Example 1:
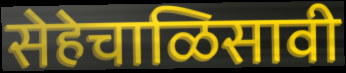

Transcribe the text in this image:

सेहेचाळिसावी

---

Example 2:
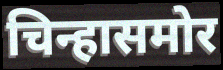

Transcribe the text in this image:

चिन्हासमोर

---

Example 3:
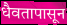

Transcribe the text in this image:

धैवतापासून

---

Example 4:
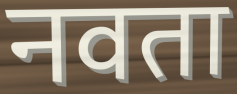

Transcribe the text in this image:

नवता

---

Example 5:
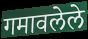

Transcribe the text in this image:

गमावलेले